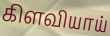
கிளவியாய்